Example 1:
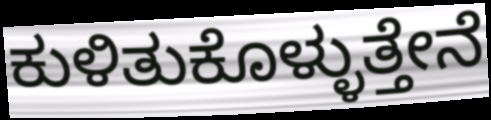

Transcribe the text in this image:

ಕುಳಿತುಕೊಳ್ಳುತ್ತೇನೆ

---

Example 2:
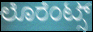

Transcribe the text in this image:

ಲೊರೆಂಟ್ಸ್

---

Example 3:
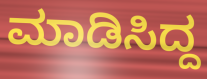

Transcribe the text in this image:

ಮಾಡಿಸಿದ್ದ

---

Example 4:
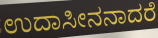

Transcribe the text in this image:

ಉದಾಸೀನನಾದರೆ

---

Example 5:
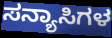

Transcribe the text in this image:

ಸನ್ಯಾಸಿಗಳ